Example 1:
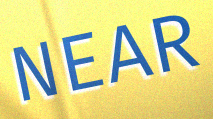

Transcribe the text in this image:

NEAR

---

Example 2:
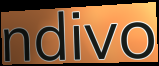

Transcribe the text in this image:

ndivo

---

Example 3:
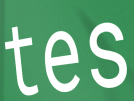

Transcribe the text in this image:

tes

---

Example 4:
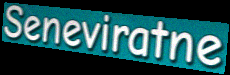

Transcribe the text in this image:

Seneviratne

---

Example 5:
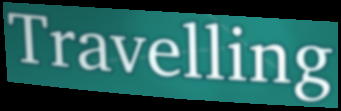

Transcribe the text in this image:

Travelling